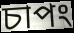
চাপং